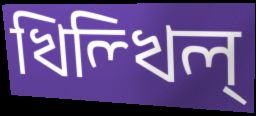
খিল্খিল্